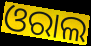
ଓରାଲ